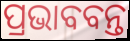
ପ୍ରଭାବବନ୍ତ